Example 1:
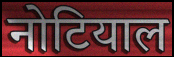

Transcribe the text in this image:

नोटियाल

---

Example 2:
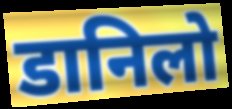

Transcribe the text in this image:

डानिलो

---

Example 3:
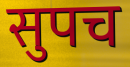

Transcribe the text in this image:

सुपच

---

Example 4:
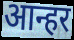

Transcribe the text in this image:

आन्हर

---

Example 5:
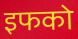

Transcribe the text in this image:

इफको